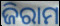
ଜିରାମ